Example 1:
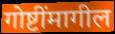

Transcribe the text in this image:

गोष्टींमागील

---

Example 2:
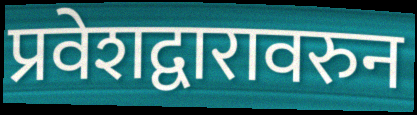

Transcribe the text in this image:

प्रवेशद्वारावरुन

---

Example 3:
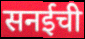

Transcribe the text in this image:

सनईची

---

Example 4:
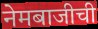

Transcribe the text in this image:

नेमबाजीची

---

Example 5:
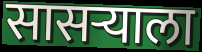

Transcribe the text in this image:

सासऱ्याला